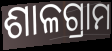
ଶାଳଗ୍ରାମ